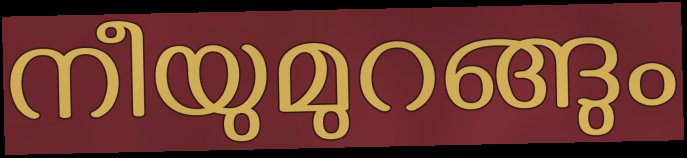
നീയുമുറങ്ങും